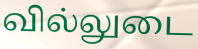
வில்லுடை